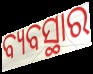
ବ୍ୟବସ୍ଥାର